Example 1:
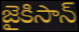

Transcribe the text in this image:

జైకిసాన్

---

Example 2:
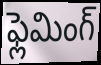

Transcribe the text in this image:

ఫ్లెమింగ్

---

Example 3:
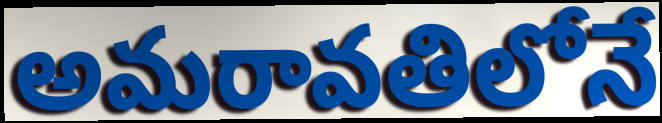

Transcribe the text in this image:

అమరావతిలోనే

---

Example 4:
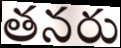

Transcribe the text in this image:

తనరు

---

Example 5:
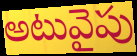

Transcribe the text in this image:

అటువైపు